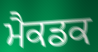
ਮੈਕਡਕ